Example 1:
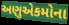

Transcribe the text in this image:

અણુએકમોના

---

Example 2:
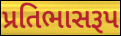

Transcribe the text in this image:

પ્રતિભાસરૂપ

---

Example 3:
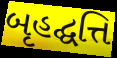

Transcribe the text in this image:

બૃહદ્ઘત્તિ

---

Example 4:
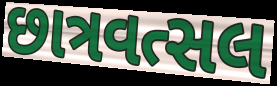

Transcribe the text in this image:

છાત્રવત્સલ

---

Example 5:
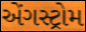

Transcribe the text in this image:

એંગસ્ટ્રોમ